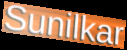
Sunilkar